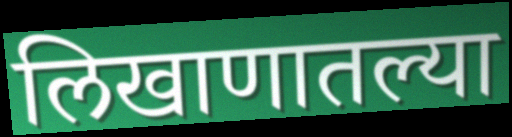
लिखाणातल्या